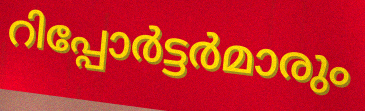
റിപ്പോർട്ടർമാരും